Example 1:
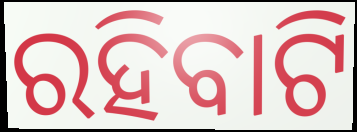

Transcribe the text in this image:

ରହିବାଟି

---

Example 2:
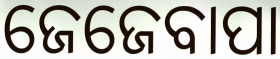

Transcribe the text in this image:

ଜେଜେବାପା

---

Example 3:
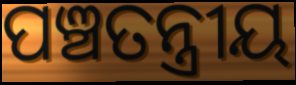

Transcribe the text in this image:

ପଞ୍ଚତନ୍ତ୍ରୀୟ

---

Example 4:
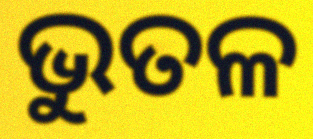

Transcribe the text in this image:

ଭୁତଳ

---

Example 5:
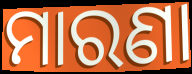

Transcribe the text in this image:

ମାରଣା